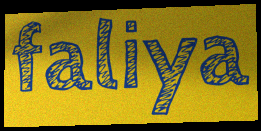
faliya